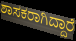
ಶಾಸಕರಾಗಿದ್ದಾರೆ